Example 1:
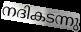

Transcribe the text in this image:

നദികടന്നു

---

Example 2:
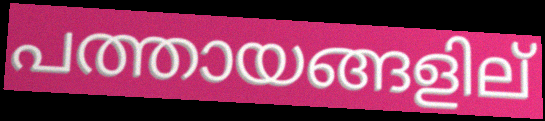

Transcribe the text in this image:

പത്തായങ്ങളില്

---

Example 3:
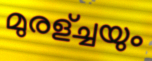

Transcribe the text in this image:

മുരള്ച്ചയും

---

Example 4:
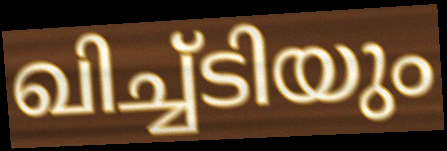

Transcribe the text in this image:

ഖിച്ച്ടിയും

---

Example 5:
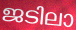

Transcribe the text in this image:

ജടിലാ